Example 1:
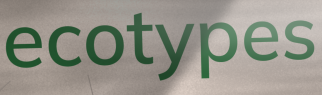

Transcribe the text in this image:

ecotypes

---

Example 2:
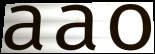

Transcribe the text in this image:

aao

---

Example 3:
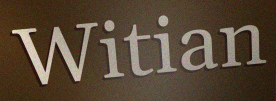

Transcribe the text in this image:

Witian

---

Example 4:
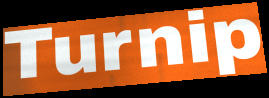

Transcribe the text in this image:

Turnip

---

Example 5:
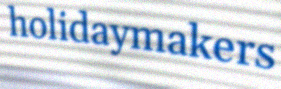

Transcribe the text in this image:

holidaymakers